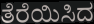
ತೆರೆಯಿಸಿದ